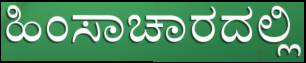
ಹಿಂಸಾಚಾರದಲ್ಲಿ